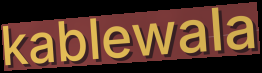
kablewala